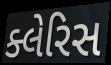
ક્લેરિસ